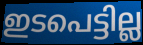
ഇടപെട്ടില്ല